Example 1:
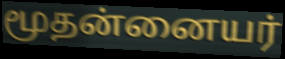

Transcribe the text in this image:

மூதன்னையர்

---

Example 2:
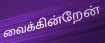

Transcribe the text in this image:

வைக்கின்றேன்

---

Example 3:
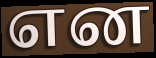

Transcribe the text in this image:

என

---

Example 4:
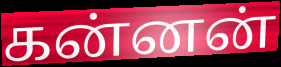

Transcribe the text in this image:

கன்னன்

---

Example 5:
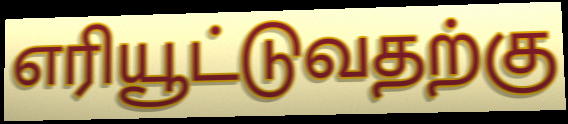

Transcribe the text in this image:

எரியூட்டுவதற்கு